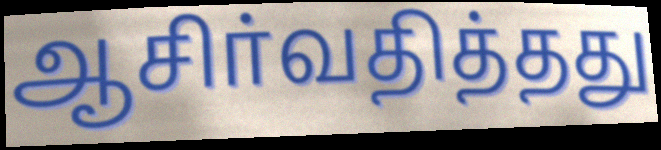
ஆசிர்வதித்தது